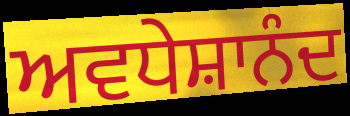
ਅਵਧੇਸ਼ਾਨੰਦ